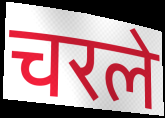
चरले